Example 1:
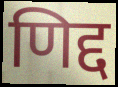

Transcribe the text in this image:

णिद्द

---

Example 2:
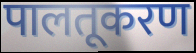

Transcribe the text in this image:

पालतूकरण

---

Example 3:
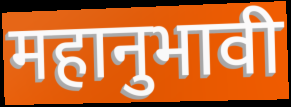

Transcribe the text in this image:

महानुभावी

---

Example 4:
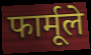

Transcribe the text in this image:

फार्मूले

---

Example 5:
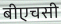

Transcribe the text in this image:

बीएचसी